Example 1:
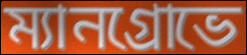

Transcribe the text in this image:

ম্যানগ্রোভে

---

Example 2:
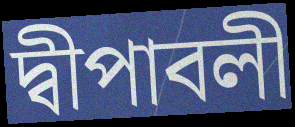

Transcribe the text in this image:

দ্বীপাবলী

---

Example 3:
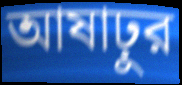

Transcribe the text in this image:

আষাঢ়ুর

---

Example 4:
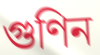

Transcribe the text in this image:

গুণিন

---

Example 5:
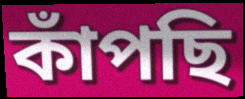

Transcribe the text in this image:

কাঁপছি